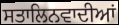
ਸਤਾਲਿਨਵਾਦੀਆਂ